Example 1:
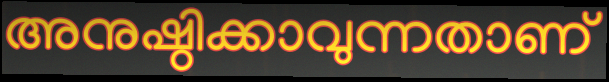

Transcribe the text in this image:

അനുഷ്ഠിക്കാവുന്നതാണ്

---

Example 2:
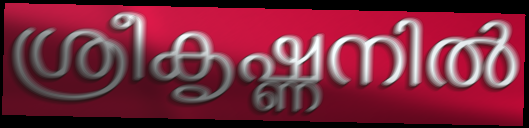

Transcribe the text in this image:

ശ്രീകൃഷ്ണനിൽ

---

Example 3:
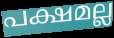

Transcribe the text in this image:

പക്ഷമല്ല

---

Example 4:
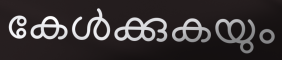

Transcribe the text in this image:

കേൾക്കുകയും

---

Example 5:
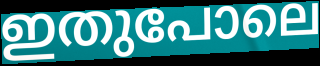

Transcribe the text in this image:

ഇതുപോലെ